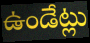
ఉండేట్లు